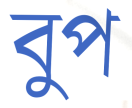
বুপ